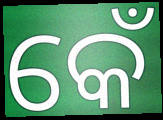
କେଁ